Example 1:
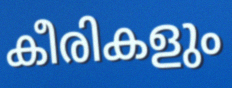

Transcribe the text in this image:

കീരികളും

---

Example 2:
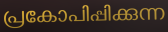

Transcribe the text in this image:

പ്രകോപിപ്പിക്കുന്ന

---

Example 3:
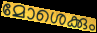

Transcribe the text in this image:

മോശെക്കും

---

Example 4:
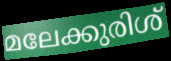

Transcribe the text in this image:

മലേക്കുരിശ്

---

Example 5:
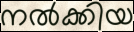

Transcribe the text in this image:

നൽക്കിയ